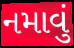
નમાવું